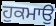
ਹੁਕਮਾਉ